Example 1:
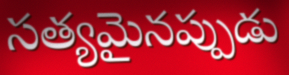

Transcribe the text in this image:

సత్యమైనప్పుడు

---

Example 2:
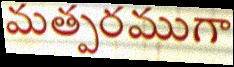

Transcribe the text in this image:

మత్పరముగా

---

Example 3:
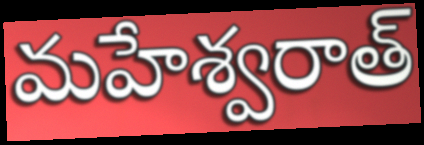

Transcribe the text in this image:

మహేశ్వరాత్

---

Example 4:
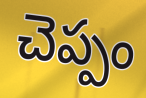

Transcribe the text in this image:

చెప్పం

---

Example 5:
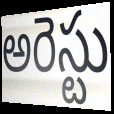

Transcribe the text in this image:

అరెస్టు